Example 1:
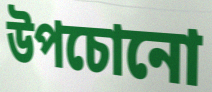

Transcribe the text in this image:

উপচোনো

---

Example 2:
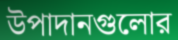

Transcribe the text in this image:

উপাদানগুলোর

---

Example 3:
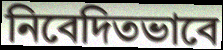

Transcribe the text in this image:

নিবেদিতভাবে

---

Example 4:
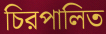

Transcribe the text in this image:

চিরপালিত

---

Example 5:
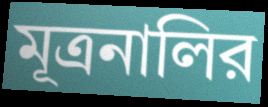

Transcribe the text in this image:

মূত্রনালির